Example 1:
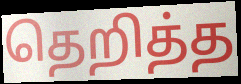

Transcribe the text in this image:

தெறித்த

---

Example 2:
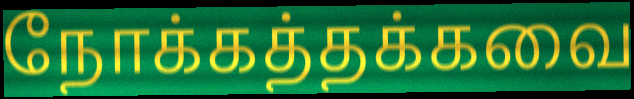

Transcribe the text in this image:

நோக்கத்தக்கவை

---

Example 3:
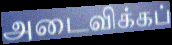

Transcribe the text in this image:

அடைவிக்கப்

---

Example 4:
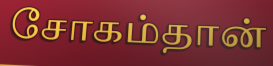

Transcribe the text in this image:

சோகம்தான்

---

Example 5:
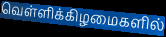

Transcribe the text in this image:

வெள்ளிக்கிழமைகளில்